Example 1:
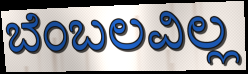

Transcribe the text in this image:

ಬೆಂಬಲವಿಲ್ಲ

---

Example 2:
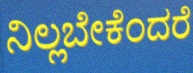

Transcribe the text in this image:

ನಿಲ್ಲಬೇಕೆಂದರೆ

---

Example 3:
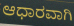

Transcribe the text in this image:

ಆಧಾರವಾಗಿ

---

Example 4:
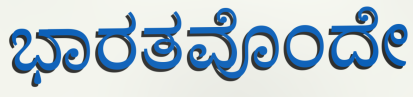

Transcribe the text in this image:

ಭಾರತವೊಂದೇ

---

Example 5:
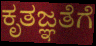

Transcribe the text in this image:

ಕೃತಜ್ಞತೆಗೆ